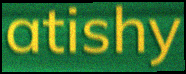
atishy